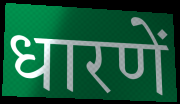
धारणें